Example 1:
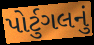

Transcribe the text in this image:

પોર્ટુગલનું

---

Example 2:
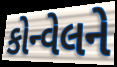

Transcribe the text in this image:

કોન્વેલને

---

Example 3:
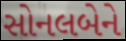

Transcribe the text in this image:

સોનલબેને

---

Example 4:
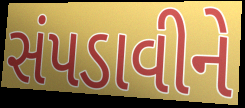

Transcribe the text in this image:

સંપડાવીને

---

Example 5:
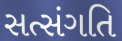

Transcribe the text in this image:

સત્સંગતિ